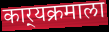
कार्यक्रमाला